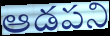
ఆడపని